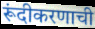
रूंदीकरणाची